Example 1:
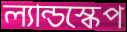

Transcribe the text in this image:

ল্যান্ডস্কেপ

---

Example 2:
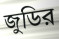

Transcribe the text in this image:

জুডির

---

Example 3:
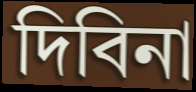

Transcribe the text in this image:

দিবিনা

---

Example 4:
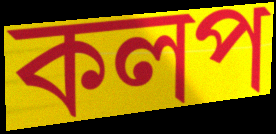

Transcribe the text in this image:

কলপ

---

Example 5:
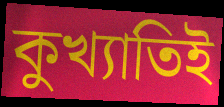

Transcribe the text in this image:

কুখ্যাতিই